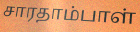
சாரதாம்பாள்